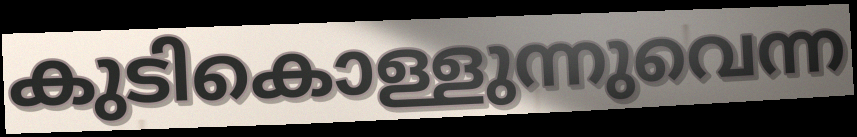
കുടികൊള്ളുന്നുവെന്ന